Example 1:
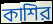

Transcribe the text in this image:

কাশির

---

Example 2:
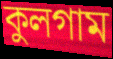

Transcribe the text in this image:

কুলগাম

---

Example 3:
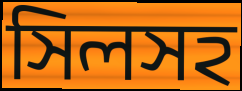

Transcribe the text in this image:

সিলসহ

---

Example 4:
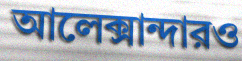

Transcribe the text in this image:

আলেক্সান্দারও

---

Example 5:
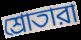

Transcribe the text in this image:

শ্রোতারা